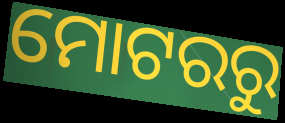
ମୋଟରରୁ